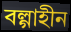
বল্গাহীন